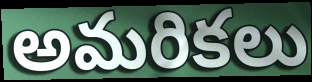
అమరికలు